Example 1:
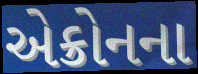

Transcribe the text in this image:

એક્રોનના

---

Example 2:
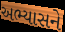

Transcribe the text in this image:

અભ્યાસને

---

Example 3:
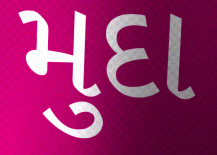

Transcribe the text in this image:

મુદા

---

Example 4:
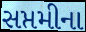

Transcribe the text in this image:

સપ્તમીના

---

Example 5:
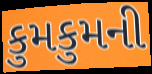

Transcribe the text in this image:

કુમકુમની